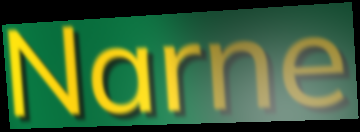
Narne